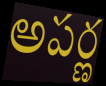
అపర్ణ